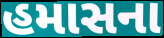
હમાસના